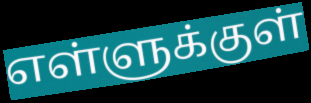
எள்ளுக்குள்